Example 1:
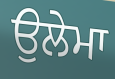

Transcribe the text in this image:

ਉਲੇਮਾ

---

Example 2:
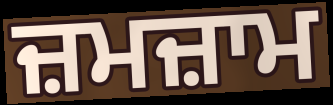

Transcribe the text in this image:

ਜ਼ਮਜ਼ਾਮ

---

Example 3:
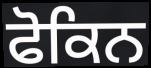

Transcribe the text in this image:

ਫੋਕਿਨ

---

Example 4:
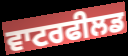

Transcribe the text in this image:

ਵਾਟਰਫੀਲਡ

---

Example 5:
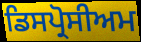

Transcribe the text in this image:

ਡਿਸਪ੍ਰੋਸੀਅਮ